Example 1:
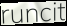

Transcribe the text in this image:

runcit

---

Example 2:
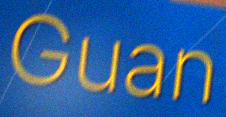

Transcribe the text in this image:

Guan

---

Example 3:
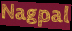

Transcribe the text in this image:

Nagpal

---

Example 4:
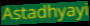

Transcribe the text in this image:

Astadhyayi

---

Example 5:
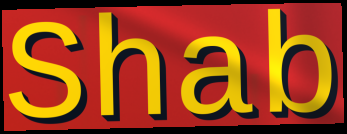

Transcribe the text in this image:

Shab